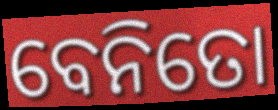
ବେନିତୋ